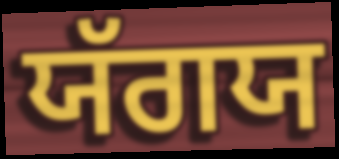
ਯੱਗਯ